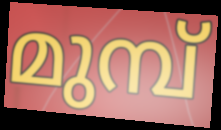
മുമ്പ്